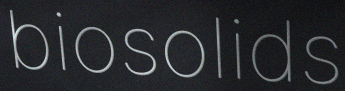
biosolids